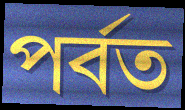
পৰ্বত